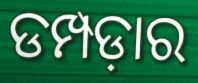
ଡମ୍ପଡ଼ାର